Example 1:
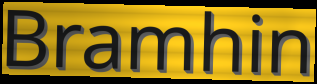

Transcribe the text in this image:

Bramhin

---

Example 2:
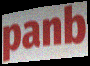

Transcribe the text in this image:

panb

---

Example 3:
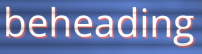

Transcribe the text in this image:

beheading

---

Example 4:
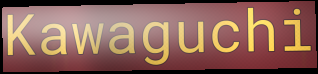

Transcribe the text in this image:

Kawaguchi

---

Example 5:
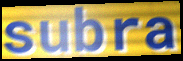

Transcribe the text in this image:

subra